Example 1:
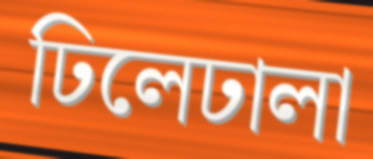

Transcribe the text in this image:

ঢিলেঢালা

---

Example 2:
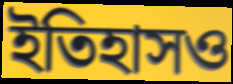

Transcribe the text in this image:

ইতিহাসও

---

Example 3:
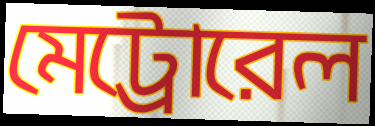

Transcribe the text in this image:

মেট্রোরেল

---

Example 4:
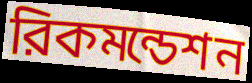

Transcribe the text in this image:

রিকমন্ডেশন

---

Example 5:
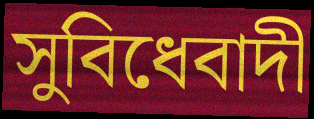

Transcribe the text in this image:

সুবিধেবাদী